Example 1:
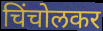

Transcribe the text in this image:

चिंचोलकर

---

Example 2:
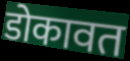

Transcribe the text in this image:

डोकावत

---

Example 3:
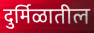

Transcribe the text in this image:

दुर्मिळातील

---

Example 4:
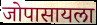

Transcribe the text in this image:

जोपासायला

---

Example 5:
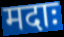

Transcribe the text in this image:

मदाः